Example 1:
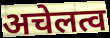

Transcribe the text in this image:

अचेलत्व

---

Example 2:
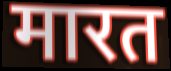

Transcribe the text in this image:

मारत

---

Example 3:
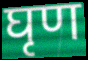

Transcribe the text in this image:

घृण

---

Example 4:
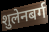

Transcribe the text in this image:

शुलेनबर्ग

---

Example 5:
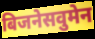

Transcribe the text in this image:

बिजनेसवुमेन